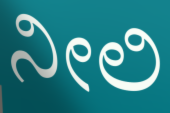
ನೀಲಿ